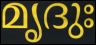
മൃദുഃ